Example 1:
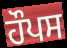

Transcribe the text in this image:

ਹੌਪਸ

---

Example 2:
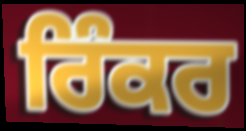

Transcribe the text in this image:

ਰਿੰਕਰ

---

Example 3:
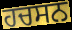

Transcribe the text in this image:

ਹਚਸਨ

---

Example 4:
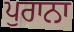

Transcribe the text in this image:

ਪੁਰਾਨਾ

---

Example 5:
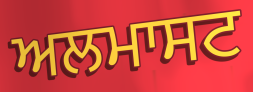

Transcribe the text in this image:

ਅਲਮਾਸਟ